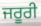
ਜਰੂਰੀ